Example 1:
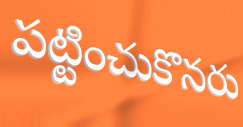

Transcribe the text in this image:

పట్టించుకొనరు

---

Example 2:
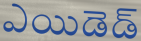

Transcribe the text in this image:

ఎయిడెడ్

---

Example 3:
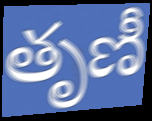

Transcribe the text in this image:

తృణీ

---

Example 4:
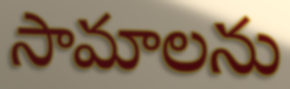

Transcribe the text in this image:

సామాలను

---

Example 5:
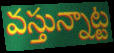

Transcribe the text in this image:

వస్తున్నాట్ట